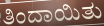
ತಿಂದಾಯಿತು